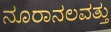
ನೂರಾನಲವತ್ತು